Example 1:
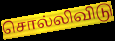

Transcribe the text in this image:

சொல்லிவிடு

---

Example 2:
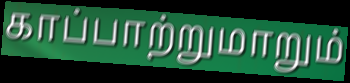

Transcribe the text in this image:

காப்பாற்றுமாறும்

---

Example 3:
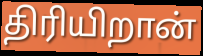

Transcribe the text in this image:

திரியிறான்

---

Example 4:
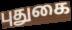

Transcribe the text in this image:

புதுகை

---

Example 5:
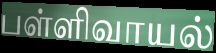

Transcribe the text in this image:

பள்ளிவாயல்